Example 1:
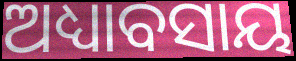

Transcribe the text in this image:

ଅଧ୍ୟାବସାୟ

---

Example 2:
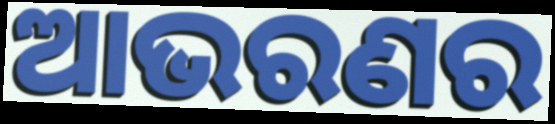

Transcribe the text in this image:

ଆଭରଣର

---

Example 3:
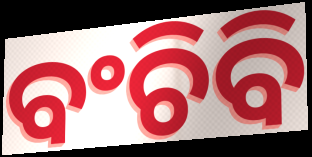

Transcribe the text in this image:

ବଂଚିବି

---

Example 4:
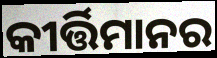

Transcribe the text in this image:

କୀର୍ତ୍ତିମାନର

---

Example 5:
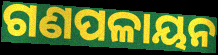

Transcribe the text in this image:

ଗଣପଳାୟନ